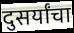
दुसर्यांचा